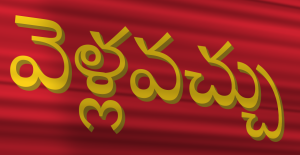
వెళ్లవచ్చు